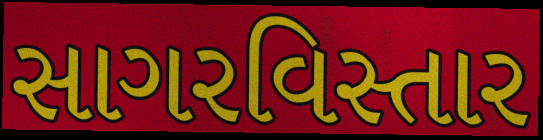
સાગરવિસ્તાર